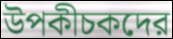
উপকীচকদের